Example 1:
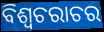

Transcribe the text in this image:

ବିଶ୍ଵଚରାଚର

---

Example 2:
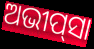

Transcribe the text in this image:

ଅଭୀପ୍‌ସା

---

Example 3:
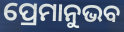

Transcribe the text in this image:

ପ୍ରେମାନୁଭବ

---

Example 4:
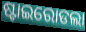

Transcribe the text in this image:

ଷ୍ଟାଇରୋଡଲା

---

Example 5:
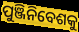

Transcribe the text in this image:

ପୁଞ୍ଜିନିବେଶକୁ